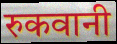
रुकवानी